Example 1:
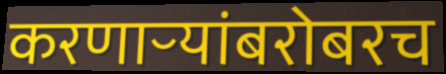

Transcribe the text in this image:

करणाऱ्यांबरोबरच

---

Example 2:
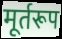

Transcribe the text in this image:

मूर्तरूप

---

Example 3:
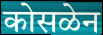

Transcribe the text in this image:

कोसळेन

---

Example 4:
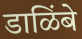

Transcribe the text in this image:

डाळिंबे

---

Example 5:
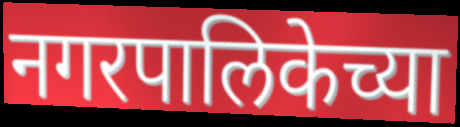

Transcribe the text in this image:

नगरपालिकेच्या